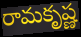
రామకృష్ణ